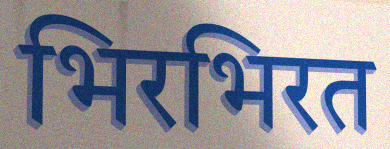
भिरभिरत